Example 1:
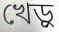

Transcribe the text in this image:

খেড়ু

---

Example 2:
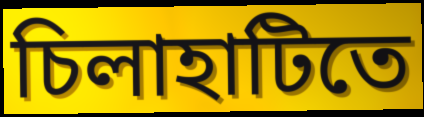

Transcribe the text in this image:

চিলাহাটিতে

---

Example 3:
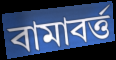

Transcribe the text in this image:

বামাবর্ত্ত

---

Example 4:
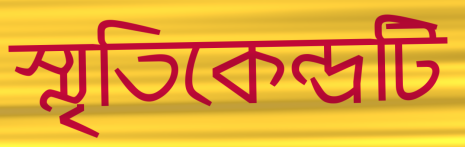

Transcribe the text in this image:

স্মৃতিকেন্দ্রটি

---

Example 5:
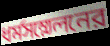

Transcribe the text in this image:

ধর্মসম্মেলনের